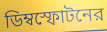
ডিম্বস্ফোটনের